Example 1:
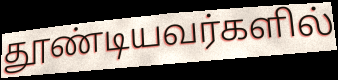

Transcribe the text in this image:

தூண்டியவர்களில்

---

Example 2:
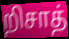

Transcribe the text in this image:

றிசாத்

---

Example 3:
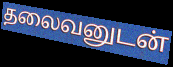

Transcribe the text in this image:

தலைவனுடன்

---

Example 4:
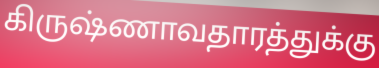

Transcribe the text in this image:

கிருஷ்ணாவதாரத்துக்கு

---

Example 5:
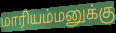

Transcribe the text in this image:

மாரியம்மனுக்கு